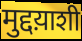
मुद्दय़ाशी